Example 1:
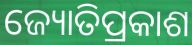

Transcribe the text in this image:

ଜ୍ୟୋତିପ୍ରକାଶ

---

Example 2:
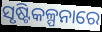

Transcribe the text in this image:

ସୃଷ୍ଟିକଳ୍ପନାରେ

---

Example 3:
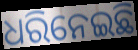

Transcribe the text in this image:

ଧରିନେଇଛି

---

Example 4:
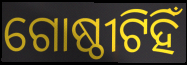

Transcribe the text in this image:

ଗୋଷ୍ଠୀଟିହିଁ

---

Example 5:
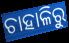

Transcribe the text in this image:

ଚାହାଳିରୁ